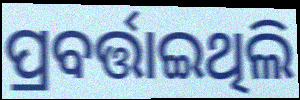
ପ୍ରବର୍ତ୍ତାଇଥିଲି